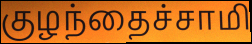
குழந்தைச்சாமி